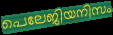
പെലേജിയനിസം